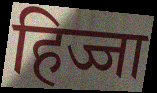
हिज्जा